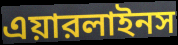
এয়ারলাইনস